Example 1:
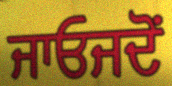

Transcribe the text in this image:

ਜਾਓਜਦੋਂ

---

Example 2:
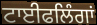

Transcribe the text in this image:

ਟਾਈਫਲਿੰਗਾਂ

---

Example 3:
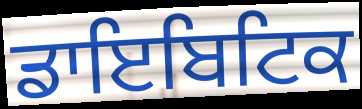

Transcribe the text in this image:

ਡਾਇਬਿਟਿਕ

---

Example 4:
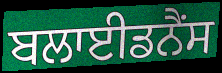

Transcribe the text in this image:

ਬਲਾਈਡਨੈਂਸ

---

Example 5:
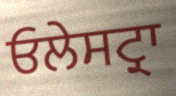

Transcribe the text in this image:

ਓਲੇਸਟ੍ਰਾ